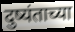
दुष्यंताच्या